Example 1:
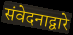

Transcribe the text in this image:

संवेदनाद्वारे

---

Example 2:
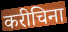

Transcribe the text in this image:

करीचिना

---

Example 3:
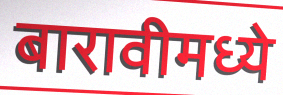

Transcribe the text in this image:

बारावीमध्ये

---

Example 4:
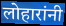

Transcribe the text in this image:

लोहारांनी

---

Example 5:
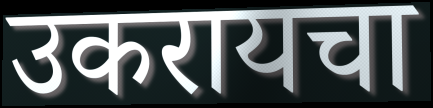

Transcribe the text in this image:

उकरायचा